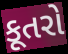
કૂતરો